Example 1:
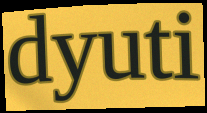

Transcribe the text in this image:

dyuti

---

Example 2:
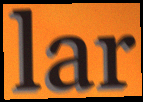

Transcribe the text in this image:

lar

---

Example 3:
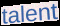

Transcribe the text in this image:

talent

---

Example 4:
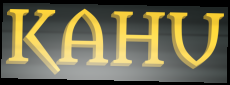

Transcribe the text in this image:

KAHU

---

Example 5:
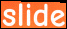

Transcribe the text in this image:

slide